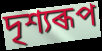
দৃশ্যৰূপ